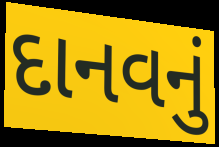
દાનવનું